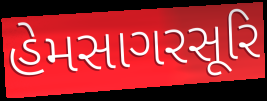
હેમસાગરસૂરિ